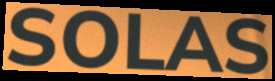
SOLAS